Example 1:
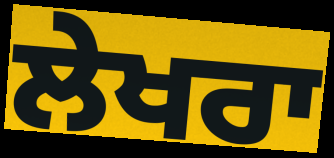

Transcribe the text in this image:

ਲੇਖਰਾ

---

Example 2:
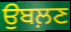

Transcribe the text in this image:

ਉਬਲ਼ਣ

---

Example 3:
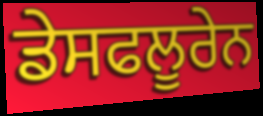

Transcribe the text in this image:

ਡੇਸਫਲੂਰੇਨ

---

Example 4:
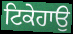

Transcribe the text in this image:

ਟਿਕੇਹਾਉ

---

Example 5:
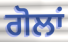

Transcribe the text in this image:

ਗੋਲਾਂ